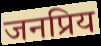
जनप्रिय